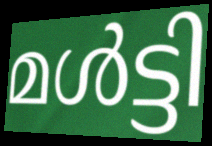
മൾട്ടി